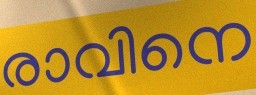
രാവിനെ